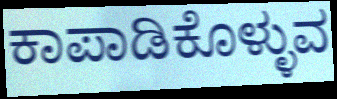
ಕಾಪಾಡಿಕೊಳ್ಳುವ